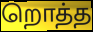
றொத்த